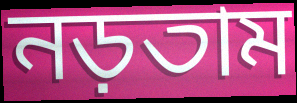
নড়তাম